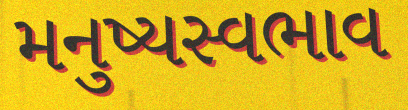
મનુષ્યસ્વભાવ